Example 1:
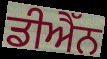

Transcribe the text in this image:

ਡੀਐੱਨ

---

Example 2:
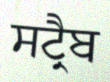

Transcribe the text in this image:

ਸਟ੍ਰੈਬ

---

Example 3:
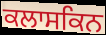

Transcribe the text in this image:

ਕਲਾਸਕਿਨ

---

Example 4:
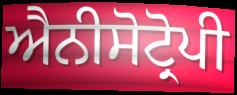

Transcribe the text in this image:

ਐਨੀਸੋਟ੍ਰੋਪੀ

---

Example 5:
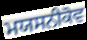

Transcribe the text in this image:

ਮਯਸਨੀਕੋਵ